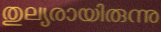
തുല്യരായിരുന്നു